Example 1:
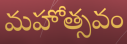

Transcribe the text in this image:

మహోత్సవం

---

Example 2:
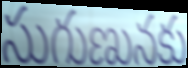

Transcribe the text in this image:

సుగుణునకు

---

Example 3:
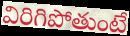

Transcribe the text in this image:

విరిగిపోతుంటే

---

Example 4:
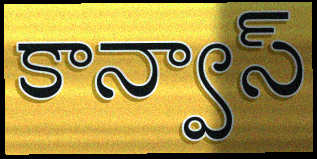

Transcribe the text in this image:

కాన్వాస్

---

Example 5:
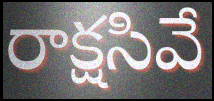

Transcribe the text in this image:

రాక్షసివే